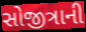
સોજીત્રાની